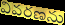
వివరణను